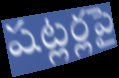
షట్లర్లపై